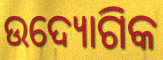
ଉଦ୍ୟୋଗିକ